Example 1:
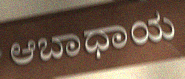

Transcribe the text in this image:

ಆಬಾಧಾಯ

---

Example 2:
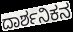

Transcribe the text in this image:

ದಾರ್ಶನಿಕನ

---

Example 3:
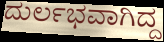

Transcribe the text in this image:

ದುರ್ಲಭವಾಗಿದ್ದ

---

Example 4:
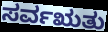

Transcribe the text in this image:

ಸರ್ವಋತು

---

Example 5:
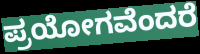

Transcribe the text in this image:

ಪ್ರಯೋಗವೆಂದರೆ